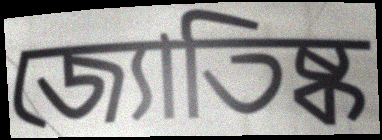
জ্যোতিষ্ক